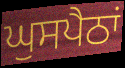
ਘੁਸਪੈਠਾਂ